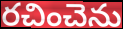
రచించెను